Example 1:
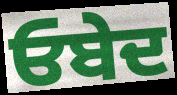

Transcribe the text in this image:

ਓਬੇਦ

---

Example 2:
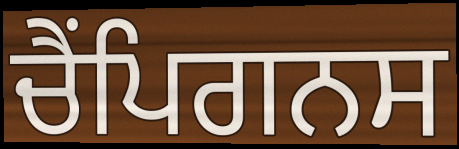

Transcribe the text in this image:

ਚੈਂਪਿਗਨਸ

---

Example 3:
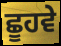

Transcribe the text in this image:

ਛੂਹਵੇ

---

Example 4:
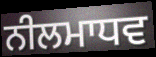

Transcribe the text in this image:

ਨੀਲਮਾਧਵ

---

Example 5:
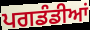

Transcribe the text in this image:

ਪਗਡੰਡੀਆਂ